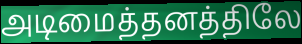
அடிமைத்தனத்திலே